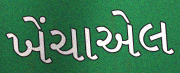
ખેંચાએલ